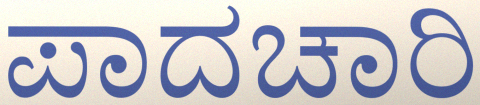
ಪಾದಚಾರಿ